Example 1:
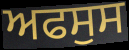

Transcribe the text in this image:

ਅਫਸੁਸ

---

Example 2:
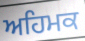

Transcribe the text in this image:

ਅਹਿਮਕ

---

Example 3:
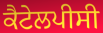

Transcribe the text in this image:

ਕੈਟੇਲਪੀਸੀ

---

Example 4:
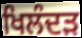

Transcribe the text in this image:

ਖਿਲੰਦੜ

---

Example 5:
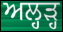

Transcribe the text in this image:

ਅਲ੍ਹੜ੍ਹ